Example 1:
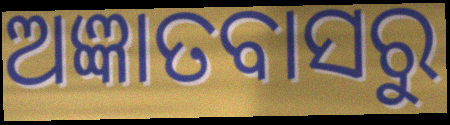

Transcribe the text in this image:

ଅଜ୍ଞାତବାସରୁ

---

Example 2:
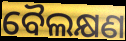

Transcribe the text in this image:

ବୈଲକ୍ଷଣ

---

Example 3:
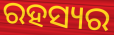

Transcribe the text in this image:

ରହସ୍ୟର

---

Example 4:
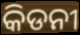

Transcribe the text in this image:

କିଡନୀ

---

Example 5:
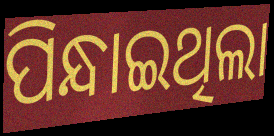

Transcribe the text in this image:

ପିନ୍ଧାଇଥିଲା